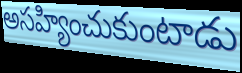
అసహ్యించుకుంటాడు